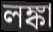
লঙ্কা